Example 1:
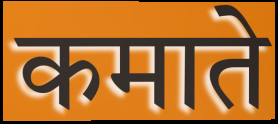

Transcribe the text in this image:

कमाते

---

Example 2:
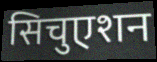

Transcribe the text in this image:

सिचुएशन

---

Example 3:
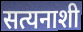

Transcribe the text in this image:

सत्यनाशी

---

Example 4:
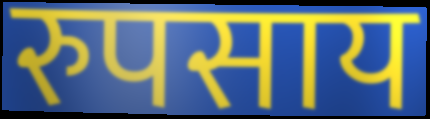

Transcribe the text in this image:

रुपसाय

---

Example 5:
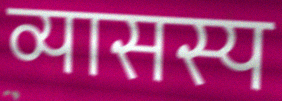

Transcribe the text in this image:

व्यासस्य